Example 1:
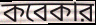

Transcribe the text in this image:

কবেকার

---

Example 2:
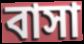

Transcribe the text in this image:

বাসা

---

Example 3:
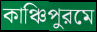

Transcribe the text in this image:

কাঞ্চিপুরমে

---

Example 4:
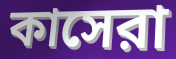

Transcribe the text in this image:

কাসেরা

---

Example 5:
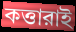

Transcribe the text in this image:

কত্তারাই